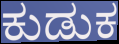
ಕುಡುಕ